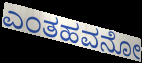
ಎಂತಹವನೋ